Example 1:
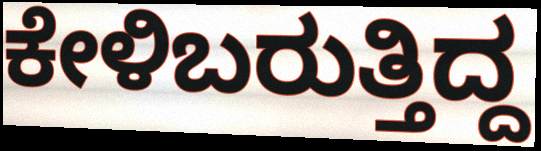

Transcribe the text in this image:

ಕೇಳಿಬರುತ್ತಿದ್ದ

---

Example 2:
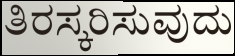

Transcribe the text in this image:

ತಿರಸ್ಕರಿಸುವುದು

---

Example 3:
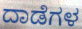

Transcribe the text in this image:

ದಾಡೆಗಳ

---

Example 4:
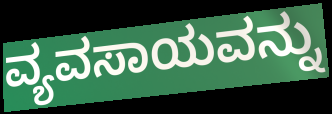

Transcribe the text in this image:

ವ್ಯವಸಾಯವನ್ನು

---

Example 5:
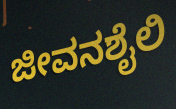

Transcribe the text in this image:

ಜೀವನಶೈಲಿ